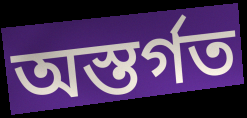
অস্তর্গত